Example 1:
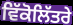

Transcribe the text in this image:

ਵਿੱਕੋਲਿੱਤਰੇ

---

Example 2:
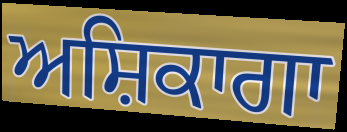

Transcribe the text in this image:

ਅਸ਼ਿਕਾਗਾ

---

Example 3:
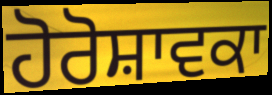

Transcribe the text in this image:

ਹੋਰੋਸ਼ਾਵਕਾ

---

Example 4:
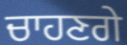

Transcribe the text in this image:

ਚਾਹਣਗੇ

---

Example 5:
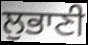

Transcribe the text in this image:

ਲੁਭਾਣੀ